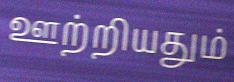
ஊற்றியதும்